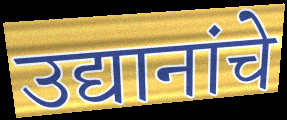
उद्यानांचे